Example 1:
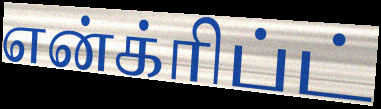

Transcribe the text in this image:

என்க்ரிப்ட்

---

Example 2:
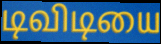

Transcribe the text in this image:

டிவிடியை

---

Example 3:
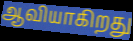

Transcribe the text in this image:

ஆவியாகிறது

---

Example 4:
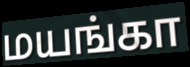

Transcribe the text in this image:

மயங்கா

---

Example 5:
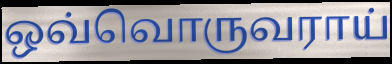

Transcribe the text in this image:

ஒவ்வொருவராய்